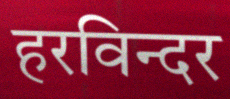
हरविन्दर